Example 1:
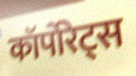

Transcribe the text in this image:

कॉर्पोरेट्स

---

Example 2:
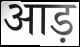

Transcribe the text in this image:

आड़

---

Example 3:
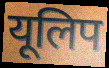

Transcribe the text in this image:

यूलिप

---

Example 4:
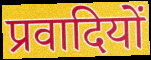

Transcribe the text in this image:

प्रवादियों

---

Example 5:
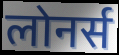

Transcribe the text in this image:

लोनर्स